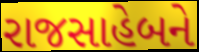
રાજસાહેબને